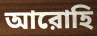
আরোহি